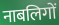
नाबलिगों